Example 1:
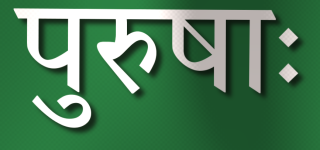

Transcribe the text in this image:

पुरुषाः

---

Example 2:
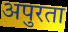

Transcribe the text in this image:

अपुरता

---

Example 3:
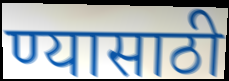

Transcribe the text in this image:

ण्यासाठी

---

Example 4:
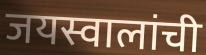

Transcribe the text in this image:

जयस्वालांची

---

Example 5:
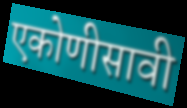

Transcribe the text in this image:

एकोणीसावी